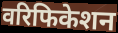
वरिफिकेशन